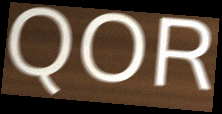
QOR